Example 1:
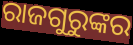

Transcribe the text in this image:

ରାଜଗୁରୁଙ୍କର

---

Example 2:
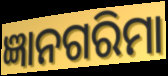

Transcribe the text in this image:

ଜ୍ଞାନଗରିମା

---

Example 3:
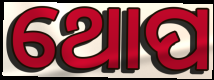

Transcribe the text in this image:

ଥୋପ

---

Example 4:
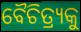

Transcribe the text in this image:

ବୈଚିତ୍ର୍ୟକୁ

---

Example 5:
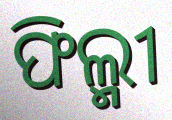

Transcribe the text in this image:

ଫିଲ୍ମୀ